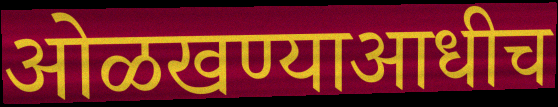
ओळखण्याआधीच